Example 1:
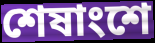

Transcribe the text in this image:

শেষাংশে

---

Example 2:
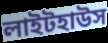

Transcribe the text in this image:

লাইটহাউস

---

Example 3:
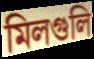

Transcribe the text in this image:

মিলগুলি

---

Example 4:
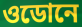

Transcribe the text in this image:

ওডোনে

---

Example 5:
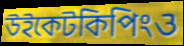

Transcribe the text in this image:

উইকেটকিপিংও